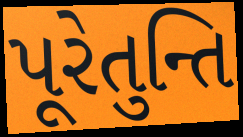
પૂરેતુન્તિ